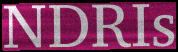
NDRIs